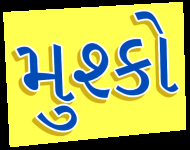
મુશ્કો